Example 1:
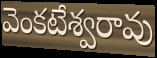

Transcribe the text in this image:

వెంకటేశ్వరావు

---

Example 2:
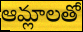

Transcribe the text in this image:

ఆమ్లాలతో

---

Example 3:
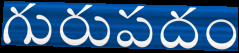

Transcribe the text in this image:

గురుపదం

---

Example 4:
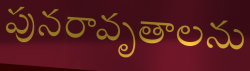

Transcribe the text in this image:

పునరావృతాలను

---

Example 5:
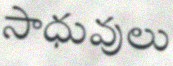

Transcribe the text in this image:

సాధువులు